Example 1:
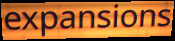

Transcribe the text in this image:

expansions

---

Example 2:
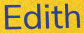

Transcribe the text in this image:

Edith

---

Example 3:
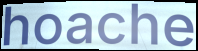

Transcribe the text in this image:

hoache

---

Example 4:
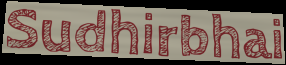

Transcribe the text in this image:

Sudhirbhai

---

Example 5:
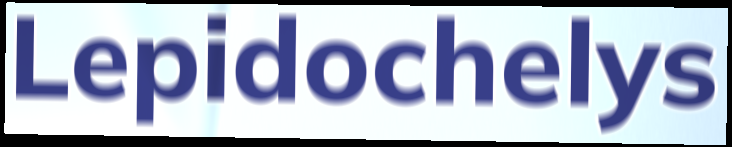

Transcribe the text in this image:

Lepidochelys